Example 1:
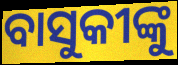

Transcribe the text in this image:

ବାସୁକୀଙ୍କୁ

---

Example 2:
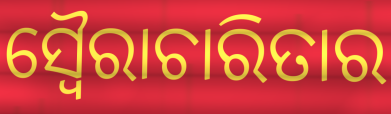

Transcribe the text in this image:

ସ୍ୱୈରାଚାରିତାର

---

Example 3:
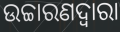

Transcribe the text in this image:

ଉଚ୍ଚାରଣଦ୍ଵାରା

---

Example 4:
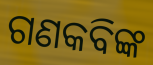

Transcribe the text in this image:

ଗଣକବିଙ୍କ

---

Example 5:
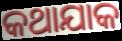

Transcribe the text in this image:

କଥାଯାକ